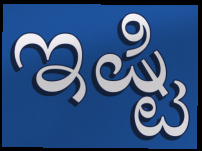
ಇಷ್ಟಿ